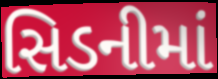
સિડનીમાં